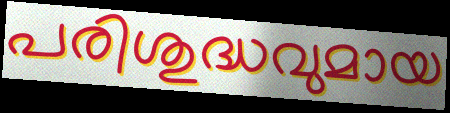
പരിശുദ്ധവുമായ